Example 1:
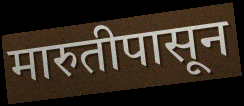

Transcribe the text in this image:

मारुतीपासून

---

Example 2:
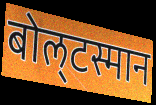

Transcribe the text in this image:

बोल्टस्मान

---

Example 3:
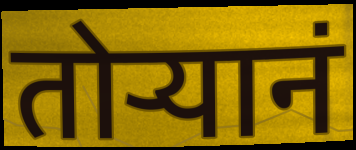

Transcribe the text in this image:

तोऱ्यानं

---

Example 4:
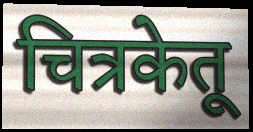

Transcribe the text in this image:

चित्रकेतू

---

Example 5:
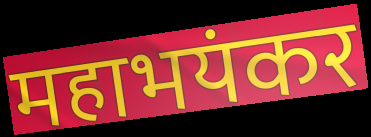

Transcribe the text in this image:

महाभयंकर